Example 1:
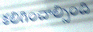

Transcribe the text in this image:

కలిగించాల్సింది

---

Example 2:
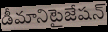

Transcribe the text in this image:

డీమానిటైజేషన్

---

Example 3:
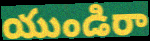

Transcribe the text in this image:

యుండిరా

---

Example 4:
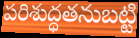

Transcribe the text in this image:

పరిశుద్ధతనుబట్టి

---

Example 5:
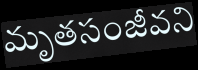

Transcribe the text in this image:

మృతసంజీవని